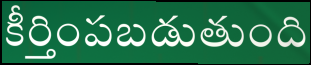
కీర్తింపబడుతుంది